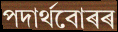
পদাৰ্থবোৰৰ